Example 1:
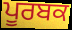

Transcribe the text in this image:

ਪੂਰਬਕ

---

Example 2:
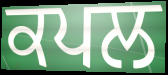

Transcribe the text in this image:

ਕਪਲ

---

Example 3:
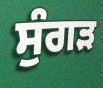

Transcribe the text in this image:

ਸੁੰਗੜ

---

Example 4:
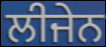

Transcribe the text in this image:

ਲੀਜੇਨ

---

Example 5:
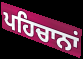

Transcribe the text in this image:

ਪਹਿਚਾਨਾਂ